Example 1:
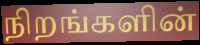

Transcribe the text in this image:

நிறங்களின்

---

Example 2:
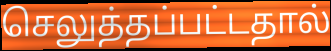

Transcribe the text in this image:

செலுத்தப்பட்டதால்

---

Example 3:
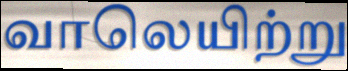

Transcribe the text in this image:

வாலெயிற்று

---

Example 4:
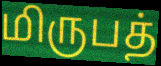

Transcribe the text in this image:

மிருபத்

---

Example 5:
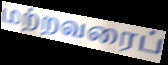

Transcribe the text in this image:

மற்றவரைப்